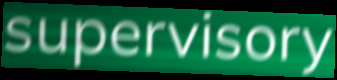
supervisory